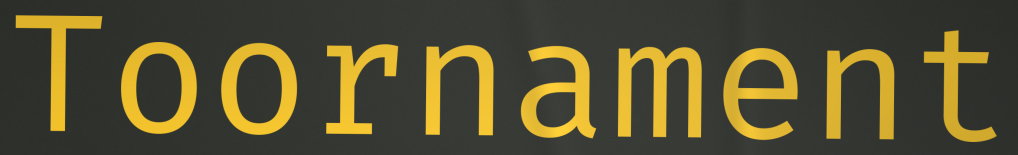
Toornament